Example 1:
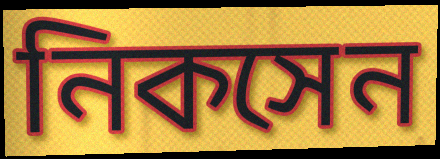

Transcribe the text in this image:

নিকসেন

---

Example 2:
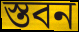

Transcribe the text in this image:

স্তবন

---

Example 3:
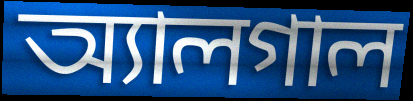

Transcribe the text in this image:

অ্যালগাল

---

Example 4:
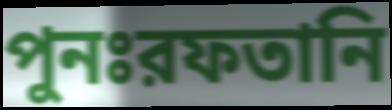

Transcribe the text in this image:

পুনঃরফতানি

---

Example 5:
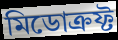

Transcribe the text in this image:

মিডোক্রফ্ট